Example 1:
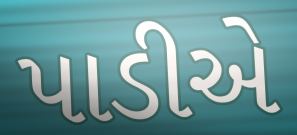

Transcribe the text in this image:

પાડીએ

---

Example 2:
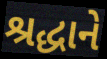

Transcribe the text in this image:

શ્રદ્ધાને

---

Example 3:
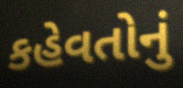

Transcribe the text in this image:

કહેવતોનું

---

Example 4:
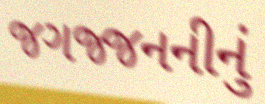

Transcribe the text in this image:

જગજ્જનનીનું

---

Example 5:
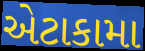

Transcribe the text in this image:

એટાકામા